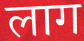
लाग